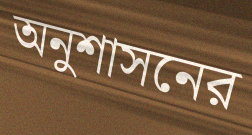
অনুশাসনের